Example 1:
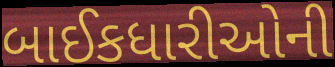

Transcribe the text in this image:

બાઈકધારીઓની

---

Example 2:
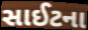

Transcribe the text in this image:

સાઈટના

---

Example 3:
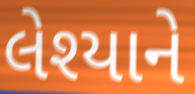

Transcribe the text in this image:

લેશ્યાને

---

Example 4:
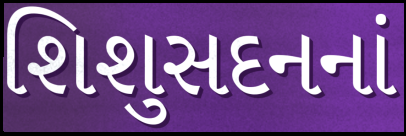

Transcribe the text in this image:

શિશુસદનનાં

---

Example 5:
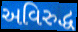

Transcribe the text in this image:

અવિરુદ્ધ